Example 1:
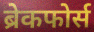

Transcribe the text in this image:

ब्रेकफोर्स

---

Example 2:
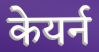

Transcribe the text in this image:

केयर्न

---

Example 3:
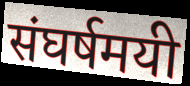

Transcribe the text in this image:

संघर्षमयी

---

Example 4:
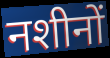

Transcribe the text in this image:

नशीनों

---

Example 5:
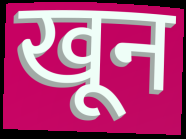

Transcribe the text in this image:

खून